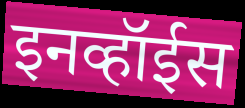
इनव्हॉईस